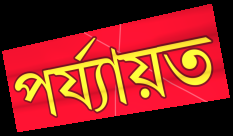
পৰ্য্যায়ত